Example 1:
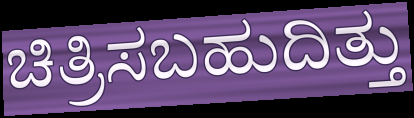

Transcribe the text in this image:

ಚಿತ್ರಿಸಬಹುದಿತ್ತು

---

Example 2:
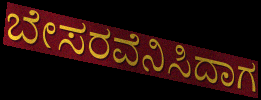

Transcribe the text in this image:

ಬೇಸರವೆನಿಸಿದಾಗ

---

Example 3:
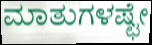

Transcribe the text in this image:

ಮಾತುಗಳಷ್ಟೇ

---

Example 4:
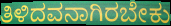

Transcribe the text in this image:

ತಿಳಿದವನಾಗಿರಬೇಕು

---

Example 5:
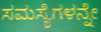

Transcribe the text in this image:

ಸಮಸ್ಯೆಗಳನ್ನೇ